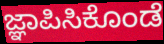
ಜ್ಞಾಪಿಸಿಕೊಂಡೆ